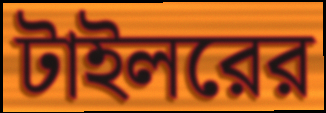
টাইলরের